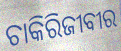
ଚାକିରିଜୀବୀର